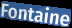
Fontaine